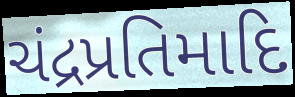
ચંદ્રપ્રતિમાદિ